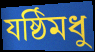
যষ্ঠিমধু